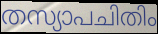
തസ്യാപചിതിം